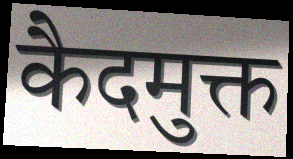
कैदमुक्त